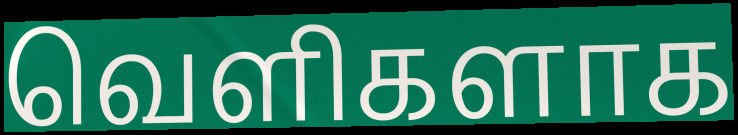
வெளிகளாக